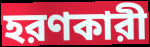
হরণকারী